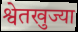
श्वेतखुज्या